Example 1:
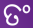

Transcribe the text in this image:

ତଂ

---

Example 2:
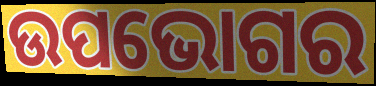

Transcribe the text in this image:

ଉପଭୋଗର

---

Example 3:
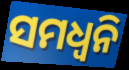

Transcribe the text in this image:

ସମଧ୍ୱନି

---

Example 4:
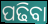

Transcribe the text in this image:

ପଢିବା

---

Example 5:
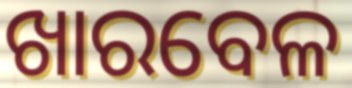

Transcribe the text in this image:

ଖାରବେଳ